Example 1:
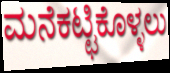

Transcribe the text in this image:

ಮನೆಕಟ್ಟಿಕೊಳ್ಳಲು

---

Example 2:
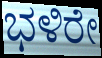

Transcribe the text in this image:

ಭಳಿರೇ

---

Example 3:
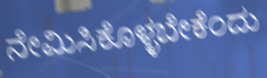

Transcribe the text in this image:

ನೇಮಿಸಿಕೊಳ್ಳಬೇಕೆಂದು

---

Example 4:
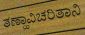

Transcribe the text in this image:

ತಣ್ಹಾವಿಚರಿತಾನಿ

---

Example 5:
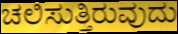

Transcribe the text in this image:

ಚಲಿಸುತ್ತಿರುವುದು